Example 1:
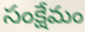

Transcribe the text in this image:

సంక్షేమం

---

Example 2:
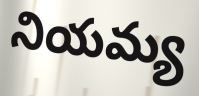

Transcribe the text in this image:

నియమ్య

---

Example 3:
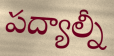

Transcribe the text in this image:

పద్యాల్నీ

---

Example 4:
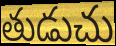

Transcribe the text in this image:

తుడుచు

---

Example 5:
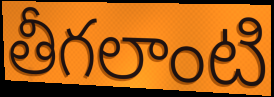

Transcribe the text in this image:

తీగలాంటి